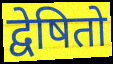
द्वेषितो